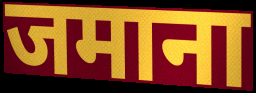
जमाना